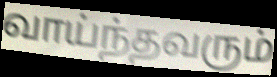
வாய்ந்தவரும்